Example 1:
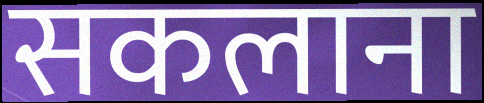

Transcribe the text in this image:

सकलाना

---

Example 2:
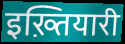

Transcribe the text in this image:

इख़्तियारी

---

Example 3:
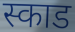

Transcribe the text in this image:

स्काड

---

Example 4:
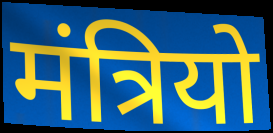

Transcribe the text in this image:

मंत्रियो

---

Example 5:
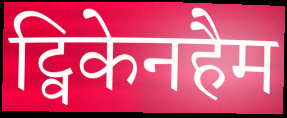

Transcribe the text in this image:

ट्विकेनहैम